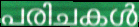
പരിചകൾ